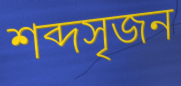
শব্দসৃজন